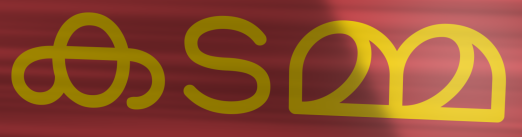
കടമ്മ